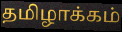
தமிழாக்கம்